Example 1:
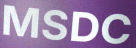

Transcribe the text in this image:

MSDC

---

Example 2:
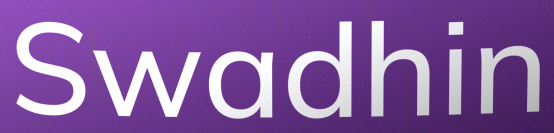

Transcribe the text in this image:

Swadhin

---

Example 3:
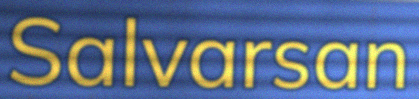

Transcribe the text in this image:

Salvarsan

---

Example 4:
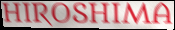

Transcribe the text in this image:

HIROSHIMA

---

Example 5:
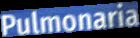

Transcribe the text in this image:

Pulmonaria